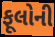
ફૂલોની